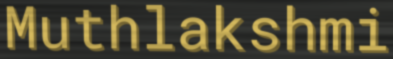
Muthlakshmi